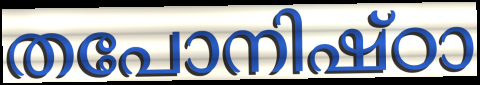
തപോനിഷ്ഠാ